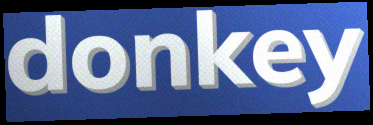
donkey